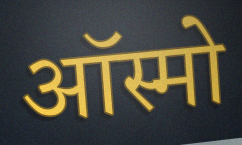
ऑस्मो